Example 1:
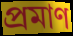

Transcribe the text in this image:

প্ৰমাণ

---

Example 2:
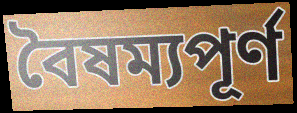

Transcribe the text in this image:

বৈষম্যপূৰ্ণ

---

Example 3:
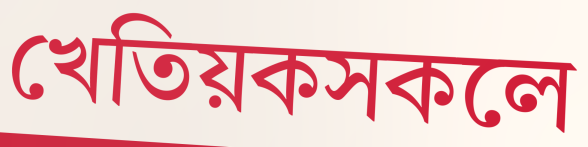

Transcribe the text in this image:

খেতিয়কসকলে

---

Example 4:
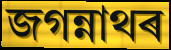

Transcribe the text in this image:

জগন্নাথৰ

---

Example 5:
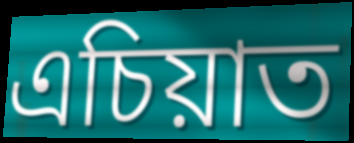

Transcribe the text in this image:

এচিয়াত